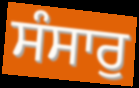
ਸੰਸਾਰੁ